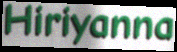
Hiriyanna